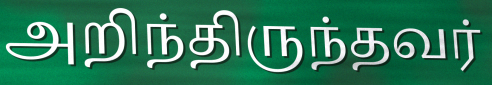
அறிந்திருந்தவர்